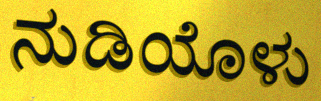
ನುಡಿಯೊಳು